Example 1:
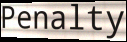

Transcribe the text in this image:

Penalty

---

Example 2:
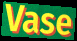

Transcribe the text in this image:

Vase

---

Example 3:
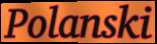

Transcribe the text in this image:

Polanski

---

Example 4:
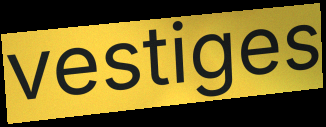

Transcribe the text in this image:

vestiges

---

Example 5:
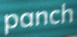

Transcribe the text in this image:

panch